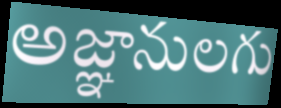
అజ్ఞానులగు